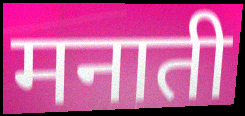
मनाती